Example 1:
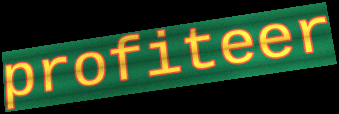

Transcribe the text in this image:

profiteer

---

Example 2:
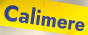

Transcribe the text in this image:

Calimere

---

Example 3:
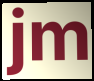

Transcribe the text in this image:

jm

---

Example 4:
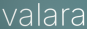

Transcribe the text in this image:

valara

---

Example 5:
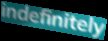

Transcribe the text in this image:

indefinitely